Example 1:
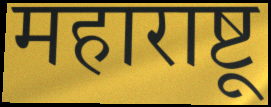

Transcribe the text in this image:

महाराष्टू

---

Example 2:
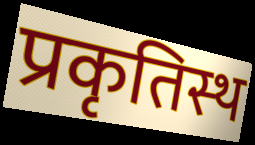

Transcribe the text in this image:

प्रकृतिस्थ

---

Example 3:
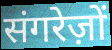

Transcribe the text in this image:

संगरेज़ों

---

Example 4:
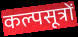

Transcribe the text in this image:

कल्पसूत्रों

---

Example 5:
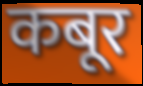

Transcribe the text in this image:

कबूर